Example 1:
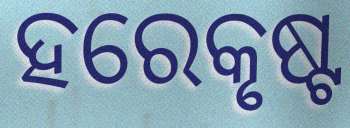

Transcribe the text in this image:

ହରେକୃଷ୍ଟ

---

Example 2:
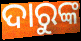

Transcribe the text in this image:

ଦାରୁଙ୍କ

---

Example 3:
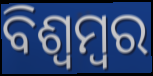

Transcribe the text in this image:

ବିଶ୍ଵମ୍ବର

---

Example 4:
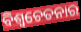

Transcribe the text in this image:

ବିଶ୍ଵଚେତନାର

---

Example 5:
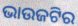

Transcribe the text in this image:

ଭାଉଜଟିର